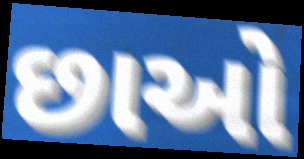
છાઓ